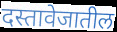
दस्तावेजातील